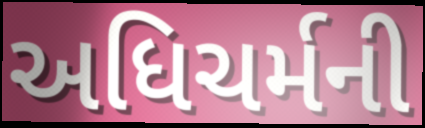
અધિચર્મની